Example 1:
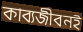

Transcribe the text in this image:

কাব্যজীবনই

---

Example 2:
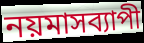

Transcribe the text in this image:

নয়মাসব্যাপী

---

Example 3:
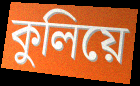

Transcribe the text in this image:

কুলিয়ে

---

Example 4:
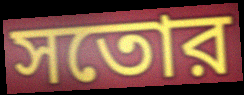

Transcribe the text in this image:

সতোর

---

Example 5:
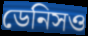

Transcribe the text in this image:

ডেনিসও